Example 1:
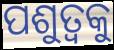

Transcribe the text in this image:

ପଶୁତ୍ୱକୁ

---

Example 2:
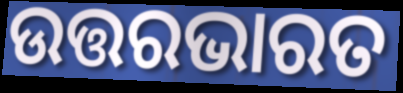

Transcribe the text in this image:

ଉତ୍ତରଭାରତ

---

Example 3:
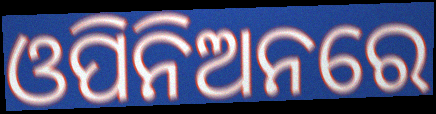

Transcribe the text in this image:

ଓପିନିଅନରେ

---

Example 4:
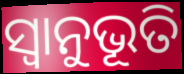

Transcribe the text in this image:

ସ୍ଵାନୁଭୂତି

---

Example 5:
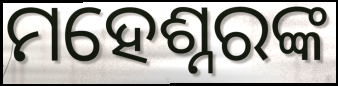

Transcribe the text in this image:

ମହେଶ୍ନରଙ୍କ